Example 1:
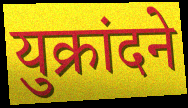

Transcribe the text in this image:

युक्रांदने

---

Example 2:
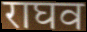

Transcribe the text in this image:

राघव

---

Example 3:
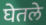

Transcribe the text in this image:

घेतले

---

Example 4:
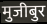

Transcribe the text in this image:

मुजीबुर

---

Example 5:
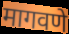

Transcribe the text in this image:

मागवणे